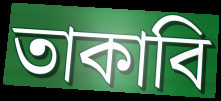
তাকাবি